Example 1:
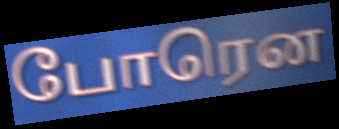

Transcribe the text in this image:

போரென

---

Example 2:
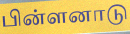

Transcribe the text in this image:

பின்ளனாடு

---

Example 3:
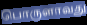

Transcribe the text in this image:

பொருளாவது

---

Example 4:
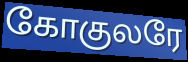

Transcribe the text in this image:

கோகுலரே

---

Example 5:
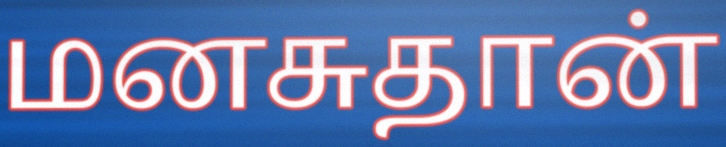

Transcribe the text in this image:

மனசுதான்